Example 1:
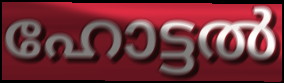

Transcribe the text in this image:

ഹോട്ടൽ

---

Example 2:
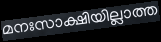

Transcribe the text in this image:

മനഃസാക്ഷിയില്ലാത്ത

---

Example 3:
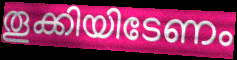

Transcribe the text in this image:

തൂക്കിയിടേണം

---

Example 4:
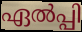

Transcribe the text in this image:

ഏൽപ്പി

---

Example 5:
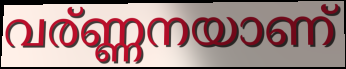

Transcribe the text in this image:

വര്ണ്ണനയാണ്